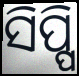
ସିପ୍ପି